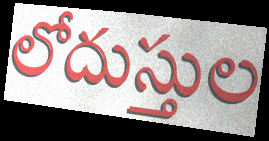
లోదుస్తుల